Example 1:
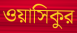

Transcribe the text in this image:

ওয়াসিকুর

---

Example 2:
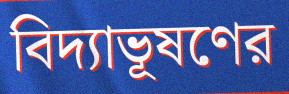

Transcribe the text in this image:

বিদ্যাভূষণের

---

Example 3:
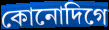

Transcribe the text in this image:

কোনোদিগে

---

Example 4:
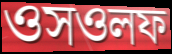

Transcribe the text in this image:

ওসওলফ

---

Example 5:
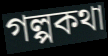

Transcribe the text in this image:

গল্পকথা